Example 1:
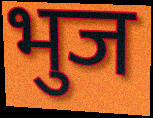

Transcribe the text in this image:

भुज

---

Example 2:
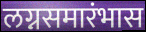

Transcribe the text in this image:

लग्नसमारंभास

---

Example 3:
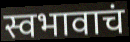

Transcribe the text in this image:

स्वभावाचं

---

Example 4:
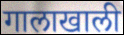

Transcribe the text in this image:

गालाखाली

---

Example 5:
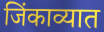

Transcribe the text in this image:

जिंकाव्यात